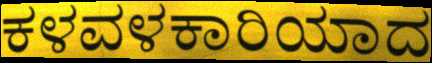
ಕಳವಳಕಾರಿಯಾದ